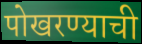
पोखरण्याची